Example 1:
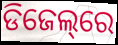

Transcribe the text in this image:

ଡିଜେଲ୍‌ରେ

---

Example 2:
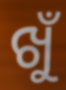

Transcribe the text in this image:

ଖୁଁ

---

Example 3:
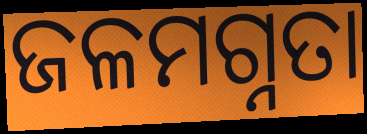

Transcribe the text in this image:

ଜଳମଗ୍ନତା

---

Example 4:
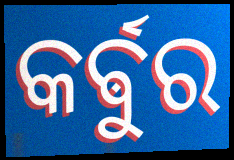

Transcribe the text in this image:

କର୍ଵୁର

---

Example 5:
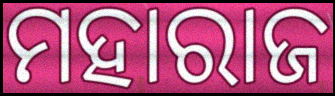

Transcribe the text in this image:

ମହାରାଜ